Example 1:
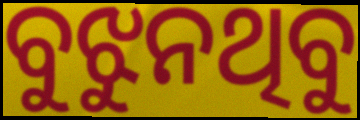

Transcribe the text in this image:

ବୁଝୁନଥିବୁ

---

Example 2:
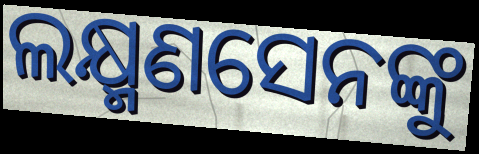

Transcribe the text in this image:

ଲକ୍ଷ୍ମଣସେନଙ୍କୁ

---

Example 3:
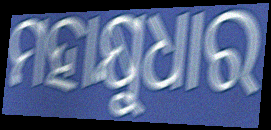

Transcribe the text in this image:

ମହାକ୍ଷୁଧାର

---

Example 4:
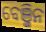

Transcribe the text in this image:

ବେଞ୍ଜିନ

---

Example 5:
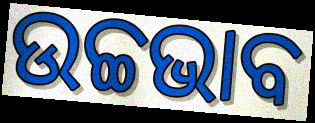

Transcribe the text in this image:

ଉଚ୍ଚଭାବ